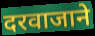
दरवाजाने